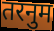
तरनुम